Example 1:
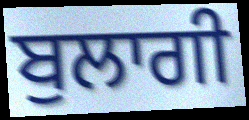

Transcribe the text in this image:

ਬੁਲਾਗੀ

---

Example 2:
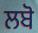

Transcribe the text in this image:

ਲਬੋ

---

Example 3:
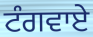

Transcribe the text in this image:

ਟੰਗਵਾਏ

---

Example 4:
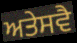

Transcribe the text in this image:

ਅਤੇਸਵੈ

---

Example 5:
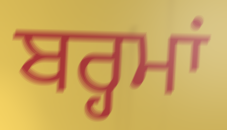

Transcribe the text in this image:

ਬਰ੍ਹਮਾਂ